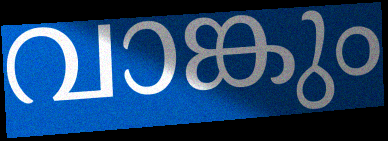
വാങ്കും